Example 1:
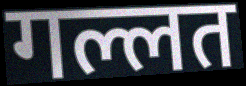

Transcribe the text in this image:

गल्लत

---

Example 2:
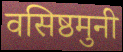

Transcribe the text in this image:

वसिष्ठमुनी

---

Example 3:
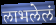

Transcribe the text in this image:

लाभलेलं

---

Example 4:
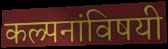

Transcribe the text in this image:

कल्पनांविषयी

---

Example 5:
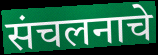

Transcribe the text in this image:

संचलनाचे